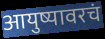
आयुष्यावरचं